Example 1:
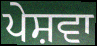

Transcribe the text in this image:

ਪੇਸ਼ਵਾ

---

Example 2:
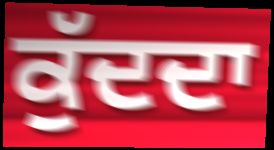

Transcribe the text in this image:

ਕੁੱਦਦਾ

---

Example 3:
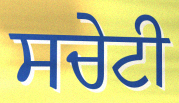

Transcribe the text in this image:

ਸਚੇਟੀ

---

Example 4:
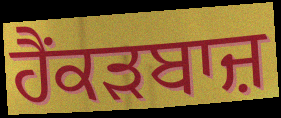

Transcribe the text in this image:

ਹੈਂਕੜਬਾਜ਼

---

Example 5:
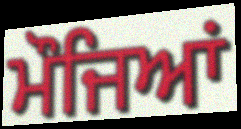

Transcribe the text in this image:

ਮੌਜਿਆਂ